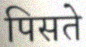
पिसते